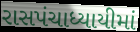
રાસપંચાધ્યાયીમાં